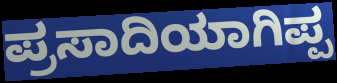
ಪ್ರಸಾದಿಯಾಗಿಪ್ಪ